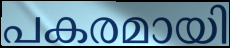
പകരമായി